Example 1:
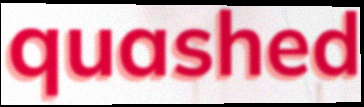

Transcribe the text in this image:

quashed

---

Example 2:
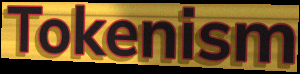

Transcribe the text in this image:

Tokenism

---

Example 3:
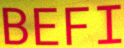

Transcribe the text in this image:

BEFI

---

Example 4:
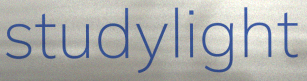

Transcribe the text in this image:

studylight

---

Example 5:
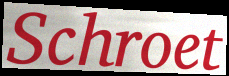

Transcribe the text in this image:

Schroet